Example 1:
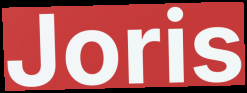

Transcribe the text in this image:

Joris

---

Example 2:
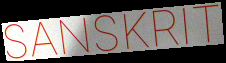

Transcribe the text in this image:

SANSKRIT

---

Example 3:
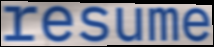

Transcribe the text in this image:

resume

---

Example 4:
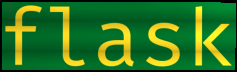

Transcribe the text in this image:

flask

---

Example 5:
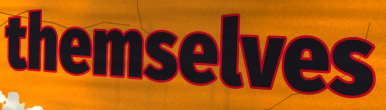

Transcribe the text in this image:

themselves